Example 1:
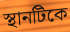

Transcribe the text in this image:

স্থানটিকে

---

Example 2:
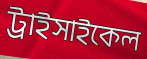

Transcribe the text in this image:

ট্রাইসাইকেল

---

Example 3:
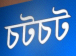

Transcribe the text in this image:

চটচট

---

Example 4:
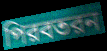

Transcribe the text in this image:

পিরবতরন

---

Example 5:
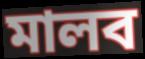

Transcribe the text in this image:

মালব